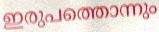
ഇരുപത്തൊന്നും